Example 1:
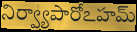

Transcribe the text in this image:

నిర్వ్యాపారోఽహమ్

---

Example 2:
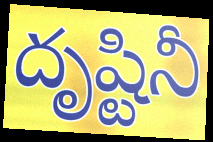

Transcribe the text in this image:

దృష్టినీ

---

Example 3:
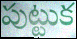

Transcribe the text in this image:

పుట్టుక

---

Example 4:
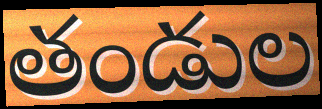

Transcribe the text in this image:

తండుల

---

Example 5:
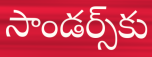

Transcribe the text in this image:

సాండర్స్‌కు